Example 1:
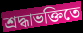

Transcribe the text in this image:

শ্রদ্ধাভক্তিতে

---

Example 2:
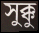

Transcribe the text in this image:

সুক্কু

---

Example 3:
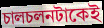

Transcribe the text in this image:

চালচলনটাকেই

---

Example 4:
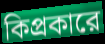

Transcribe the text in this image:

কিপ্রকারে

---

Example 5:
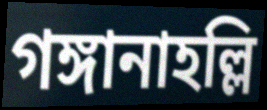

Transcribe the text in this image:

গঙ্গানাহল্লি